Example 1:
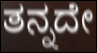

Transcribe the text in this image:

ತನ್ನದೇ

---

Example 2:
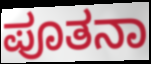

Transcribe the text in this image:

ಪೂತನಾ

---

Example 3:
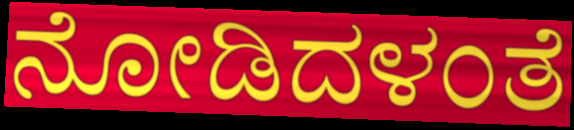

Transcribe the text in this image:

ನೋಡಿದಳಂತೆ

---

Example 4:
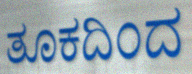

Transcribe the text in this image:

ತೂಕದಿಂದ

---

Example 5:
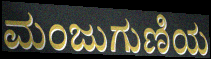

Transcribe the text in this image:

ಮಂಜುಗುಣಿಯ